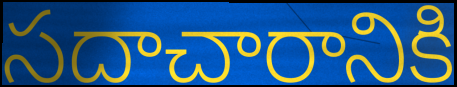
సదాచారానికి